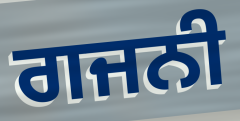
ਗਜਨੀ